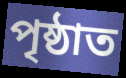
পৃষ্ঠাত